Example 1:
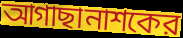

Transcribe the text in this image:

আগাছানাশকের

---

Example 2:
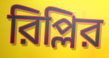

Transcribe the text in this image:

রিপ্লির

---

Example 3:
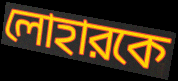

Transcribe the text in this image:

লোহারকে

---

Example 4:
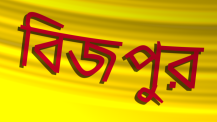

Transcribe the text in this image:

বিজপুর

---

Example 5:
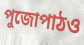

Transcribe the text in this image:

পুজোপাঠও